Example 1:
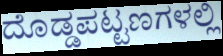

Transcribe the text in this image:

ದೊಡ್ಡಪಟ್ಟಣಗಳಲ್ಲಿ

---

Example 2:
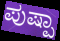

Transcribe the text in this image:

ಪುಷ್ಪಾ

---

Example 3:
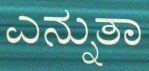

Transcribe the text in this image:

ಎನ್ನುತಾ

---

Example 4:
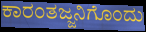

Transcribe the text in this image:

ಕಾರಂತಜ್ಜನಿಗೊಂದು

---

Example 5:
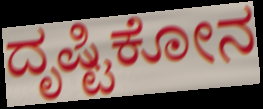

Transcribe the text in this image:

ದೃಷ್ಟಿಕೋನ